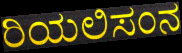
ರಿಯಲಿಸಂನ